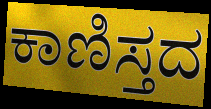
ಕಾಣಿಸ್ತದ